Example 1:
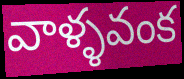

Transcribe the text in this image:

వాళ్ళవంక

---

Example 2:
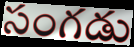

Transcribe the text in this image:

సంగడు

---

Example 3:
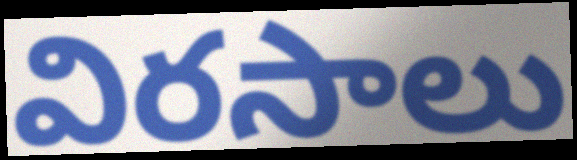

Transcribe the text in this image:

విరసాలు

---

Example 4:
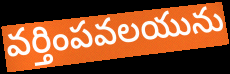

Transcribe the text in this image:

వర్తింపవలయును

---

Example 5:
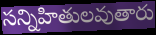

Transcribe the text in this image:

సన్నిహితులవుతారు